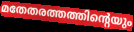
മതേതരത്തത്തിന്റെയും